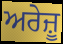
ਅਰੇਜ਼ੂ